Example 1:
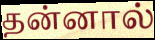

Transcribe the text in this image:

தன்னால்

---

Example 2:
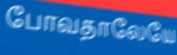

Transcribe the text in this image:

போவதாலேயே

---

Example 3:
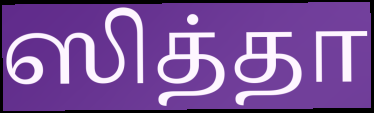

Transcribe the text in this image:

ஸித்தா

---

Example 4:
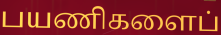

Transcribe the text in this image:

பயணிகளைப்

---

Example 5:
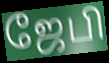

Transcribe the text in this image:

ஜேபி